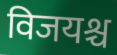
विजयश्च